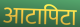
आटापिटा